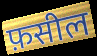
फ़सील